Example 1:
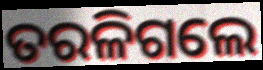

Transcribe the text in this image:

ତରଳିଗଲେ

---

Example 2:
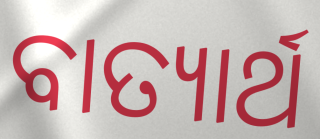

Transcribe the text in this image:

ବାତ୍ୟାର୍ଥ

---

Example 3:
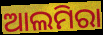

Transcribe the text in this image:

ଆଲମିରା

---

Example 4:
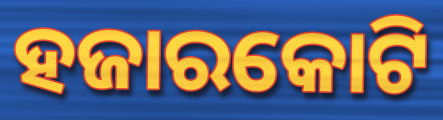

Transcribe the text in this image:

ହଜାରକୋଟି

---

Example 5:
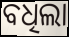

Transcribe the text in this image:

ବଧିଲା